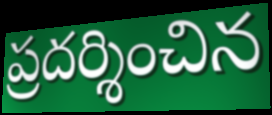
ప్రదర్శించిన